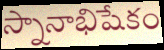
స్నానాభిషేకం